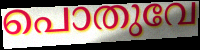
പൊതുവേ